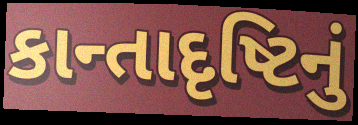
કાન્તાદૃષ્ટિનું